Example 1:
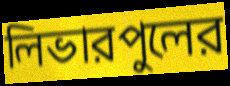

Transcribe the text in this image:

লিভারপুলের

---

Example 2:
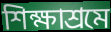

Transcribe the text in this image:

শিক্ষাশ্রমে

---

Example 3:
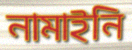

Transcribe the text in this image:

নামাইনি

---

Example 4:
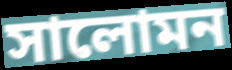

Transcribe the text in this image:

সালোমন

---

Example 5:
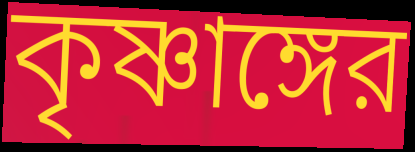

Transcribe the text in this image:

কৃষ্ণাঙ্গের